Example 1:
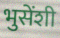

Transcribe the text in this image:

भुसेंशी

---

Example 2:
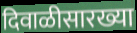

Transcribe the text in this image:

दिवाळीसारख्या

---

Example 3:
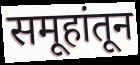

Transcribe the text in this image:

समूहांतून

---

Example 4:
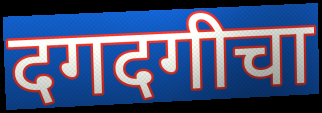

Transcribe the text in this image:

दगदगीचा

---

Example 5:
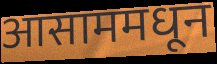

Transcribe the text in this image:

आसाममधून